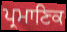
ਪ੍ਰਮਾਣਿਕ